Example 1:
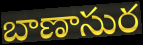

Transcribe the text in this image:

బాణాసుర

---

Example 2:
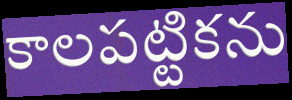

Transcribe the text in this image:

కాలపట్టికను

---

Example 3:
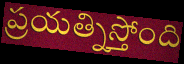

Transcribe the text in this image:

ప్రయత్నిస్తోంది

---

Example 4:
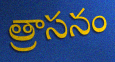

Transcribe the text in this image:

త్రాసనం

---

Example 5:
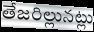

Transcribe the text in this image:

తేజరిల్లునట్లు